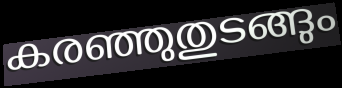
കരഞ്ഞുതുടങ്ങും